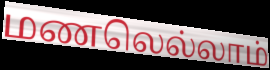
மணலெல்லாம்